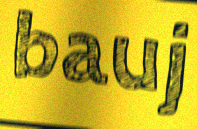
bauj